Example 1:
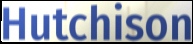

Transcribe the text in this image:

Hutchison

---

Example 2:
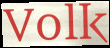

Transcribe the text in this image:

Volk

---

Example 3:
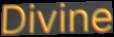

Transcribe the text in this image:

Divine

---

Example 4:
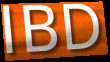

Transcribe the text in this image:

IBD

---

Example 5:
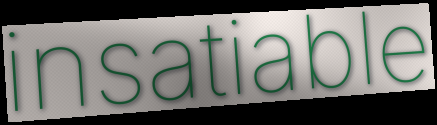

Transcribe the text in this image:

insatiable